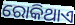
ରୋକିଥାଏ